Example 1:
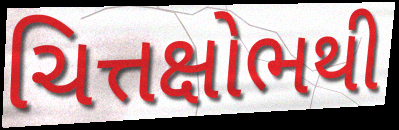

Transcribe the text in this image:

ચિત્તક્ષોભથી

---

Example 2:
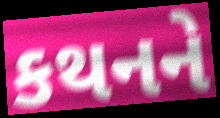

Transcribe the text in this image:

કથનને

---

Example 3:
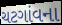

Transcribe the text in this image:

ચટગાંવના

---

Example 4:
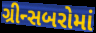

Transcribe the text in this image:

ગ્રીન્સબરોમાં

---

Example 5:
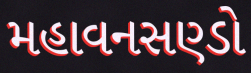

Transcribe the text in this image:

મહાવનસણ્ડો